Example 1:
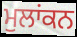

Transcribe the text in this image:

ਮੁਲਾਂਕਨ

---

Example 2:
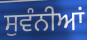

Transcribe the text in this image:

ਸੁਵੰਨੀਆਂ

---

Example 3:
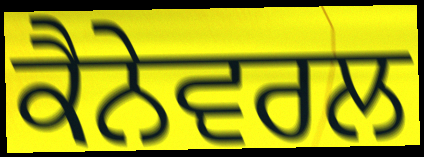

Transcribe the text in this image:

ਕੈਨੇਵਰਲ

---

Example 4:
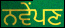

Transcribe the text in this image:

ਨਵੇਂਪਣ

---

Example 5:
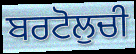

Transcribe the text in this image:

ਬਰਟੋਲੁਚੀ